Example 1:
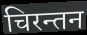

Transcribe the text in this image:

चिरन्तन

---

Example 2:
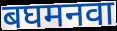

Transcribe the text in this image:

बघमनवा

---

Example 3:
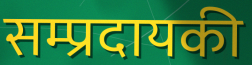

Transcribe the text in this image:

सम्प्रदायकी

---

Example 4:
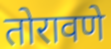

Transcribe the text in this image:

तोरावणे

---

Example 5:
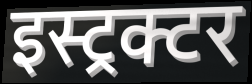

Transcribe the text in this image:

इस्ट्रक्टर